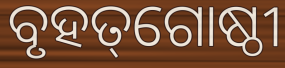
ବୃହତ୍‌ଗୋଷ୍ଠୀ